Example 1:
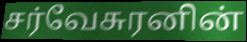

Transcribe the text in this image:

சர்வேசுரனின்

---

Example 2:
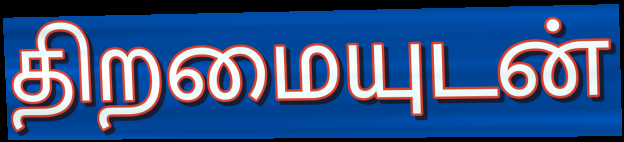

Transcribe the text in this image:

திறமையுடன்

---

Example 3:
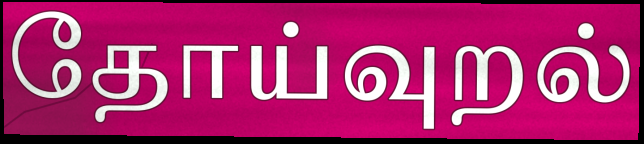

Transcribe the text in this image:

தோய்வுறல்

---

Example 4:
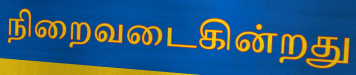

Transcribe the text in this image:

நிறைவடைகின்றது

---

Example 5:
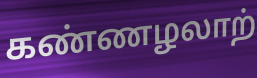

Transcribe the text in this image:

கண்ணழலாற்